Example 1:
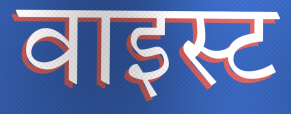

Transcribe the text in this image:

वाइस्ट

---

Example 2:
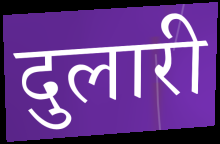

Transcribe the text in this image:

दुलारी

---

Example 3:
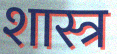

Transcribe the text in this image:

शास्त्र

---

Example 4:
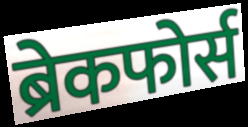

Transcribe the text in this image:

ब्रेकफोर्स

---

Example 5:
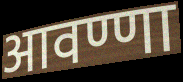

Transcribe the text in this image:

आवण्णा